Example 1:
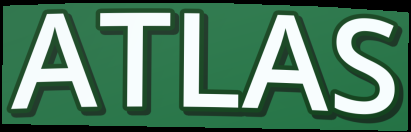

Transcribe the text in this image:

ATLAS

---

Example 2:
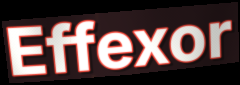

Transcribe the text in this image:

Effexor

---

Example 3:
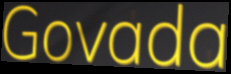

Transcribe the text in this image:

Govada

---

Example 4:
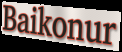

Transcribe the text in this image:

Baikonur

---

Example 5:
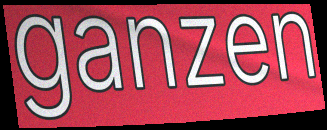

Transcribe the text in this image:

ganzen